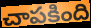
చాపకింది